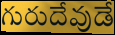
గురుదేవుడే